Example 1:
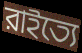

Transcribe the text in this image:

রাইত্যে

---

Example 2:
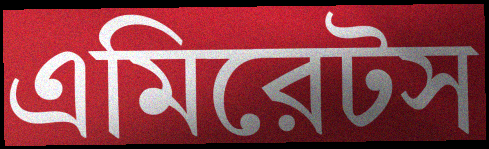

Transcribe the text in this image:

এমিরেটস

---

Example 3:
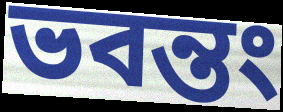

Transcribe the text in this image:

ভবন্তং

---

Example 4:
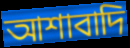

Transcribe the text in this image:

আশাবাদি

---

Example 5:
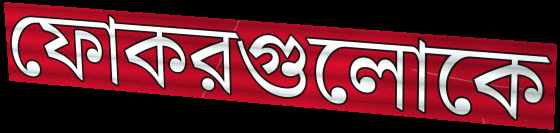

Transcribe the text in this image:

ফোকরগুলোকে